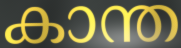
കാന്ത